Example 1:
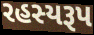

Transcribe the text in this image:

રહસ્યરૂપ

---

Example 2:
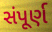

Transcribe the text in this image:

સંપૂર્ણ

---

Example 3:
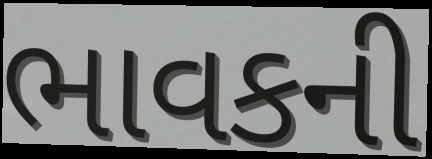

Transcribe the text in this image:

ભાવકની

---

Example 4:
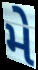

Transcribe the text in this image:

મે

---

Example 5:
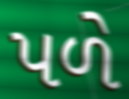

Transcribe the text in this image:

પળે